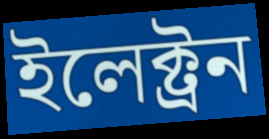
ইলেক্ট্ৰন